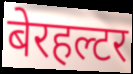
बेरहल्टर